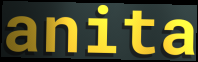
anita